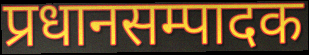
प्रधानसम्पादक